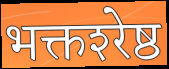
भक्तश्रेष्ठ